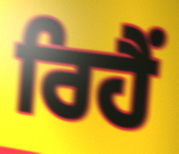
ਰਿਹੈਂ